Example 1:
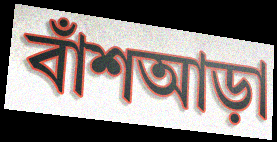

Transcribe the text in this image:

বাঁশআড়া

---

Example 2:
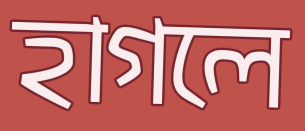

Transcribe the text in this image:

হাগলে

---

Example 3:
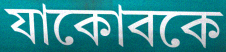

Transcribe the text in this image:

যাকোবকে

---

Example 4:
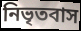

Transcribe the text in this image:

নিভৃতবাস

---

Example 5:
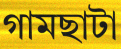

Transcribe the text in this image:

গামছাটা